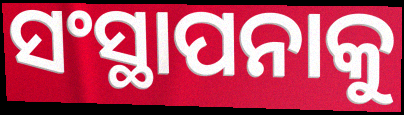
ସଂସ୍ଥାପନାକୁ